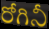
రోగినీ